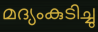
മദ്യംകുടിച്ചു